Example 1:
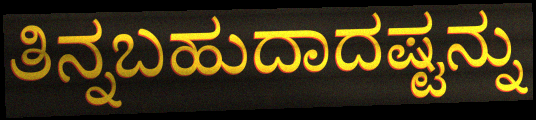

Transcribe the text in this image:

ತಿನ್ನಬಹುದಾದಷ್ಟನ್ನು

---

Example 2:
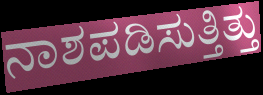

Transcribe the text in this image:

ನಾಶಪಡಿಸುತ್ತಿತ್ತು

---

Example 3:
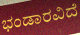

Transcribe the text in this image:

ಭಂಡಾರವಿದೆ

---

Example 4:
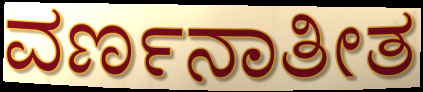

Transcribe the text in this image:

ವರ್ಣನಾತೀತ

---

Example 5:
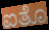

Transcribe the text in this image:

ಐತೊ